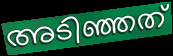
അടിഞ്ഞത്